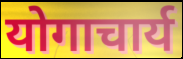
योगाचार्य